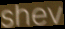
shev